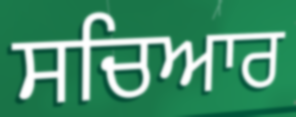
ਸਚਿਆਰ